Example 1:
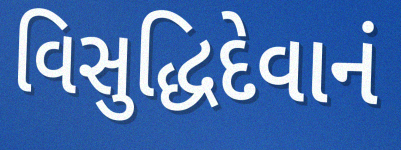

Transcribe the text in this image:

વિસુદ્ધિદેવાનં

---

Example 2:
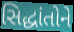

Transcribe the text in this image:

સિદ્ધાંતોને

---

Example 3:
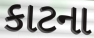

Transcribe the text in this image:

કાટના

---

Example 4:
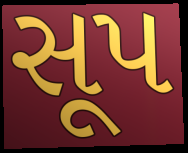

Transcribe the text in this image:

સૂપ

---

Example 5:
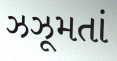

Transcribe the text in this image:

ઝઝૂમતાં